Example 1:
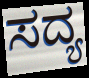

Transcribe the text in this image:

ಸದ್ಯ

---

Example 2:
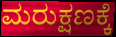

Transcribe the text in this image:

ಮರುಕ್ಷಣಕ್ಕೆ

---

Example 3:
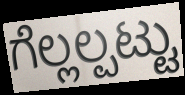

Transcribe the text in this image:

ಗೆಲ್ಲಲ್ಪಟ್ಟು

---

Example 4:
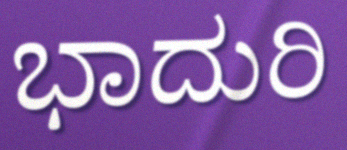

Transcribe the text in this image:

ಭಾದುರಿ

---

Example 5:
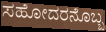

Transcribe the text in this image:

ಸಹೋದರನೊಬ್ಬ